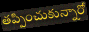
తప్పించుకున్నారో